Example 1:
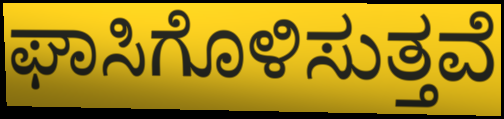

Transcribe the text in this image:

ಘಾಸಿಗೊಳಿಸುತ್ತವೆ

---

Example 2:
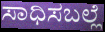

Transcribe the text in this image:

ಸಾಧಿಸಬಲ್ಲೆ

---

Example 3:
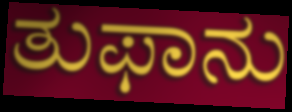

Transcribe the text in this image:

ತುಫಾನು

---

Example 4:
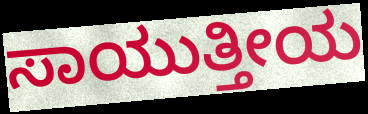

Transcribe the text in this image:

ಸಾಯುತ್ತೀಯ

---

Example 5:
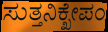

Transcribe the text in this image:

ಸುತ್ತನಿಕ್ಖೇಪಂ